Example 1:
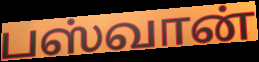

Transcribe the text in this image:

பஸ்வான்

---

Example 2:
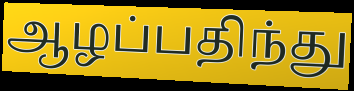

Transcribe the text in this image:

ஆழப்பதிந்து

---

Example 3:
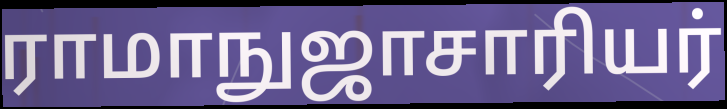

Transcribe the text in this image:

ராமாநுஜாசாரியர்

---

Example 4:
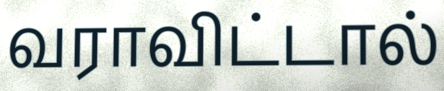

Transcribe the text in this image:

வராவிட்டால்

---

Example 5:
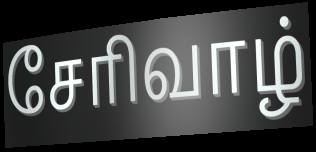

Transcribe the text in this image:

சேரிவாழ்